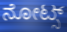
ನೋಟ್ಸ್